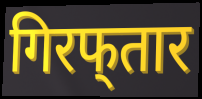
गिरफ्‌तार